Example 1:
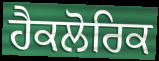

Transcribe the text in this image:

ਹੈਕਲੋਰਿਕ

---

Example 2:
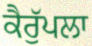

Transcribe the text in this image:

ਕੈਰੁੱਪਲਾ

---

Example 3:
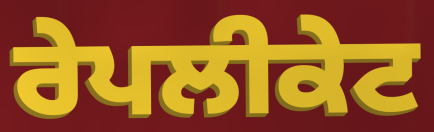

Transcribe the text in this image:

ਰੇਪਲੀਕੇਟ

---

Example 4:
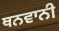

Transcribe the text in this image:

ਥਨਵਾਨੀ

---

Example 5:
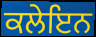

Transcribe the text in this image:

ਕਲੇਇਨ